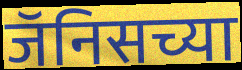
जॅनिसच्या